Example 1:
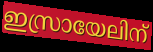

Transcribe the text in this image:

ഇസ്രായേലിന്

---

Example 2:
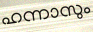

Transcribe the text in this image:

ഹന്നാസും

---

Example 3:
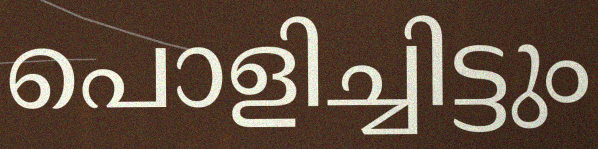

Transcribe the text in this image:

പൊളിച്ചിട്ടും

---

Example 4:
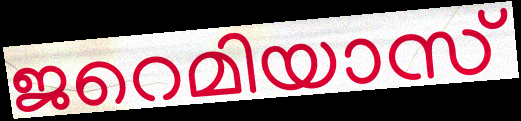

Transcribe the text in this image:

ജറെമിയാസ്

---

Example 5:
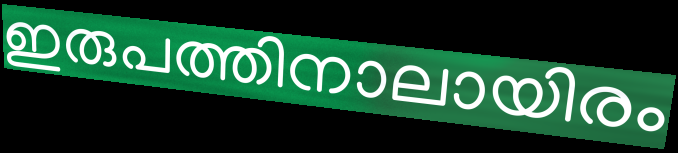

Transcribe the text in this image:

ഇരുപത്തിനാലായിരം